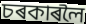
চৰকাৰলৈ